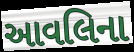
આવલિના